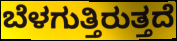
ಬೆಳಗುತ್ತಿರುತ್ತದೆ